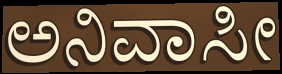
ಅನಿವಾಸೀ